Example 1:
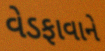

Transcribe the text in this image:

વેડફાવાને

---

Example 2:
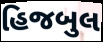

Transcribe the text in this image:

હિજબુલ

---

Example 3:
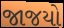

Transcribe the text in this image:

જાજયો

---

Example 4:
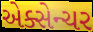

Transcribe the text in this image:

એક્સેન્ચર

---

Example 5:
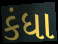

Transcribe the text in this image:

કંધા